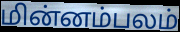
மின்னம்பலம்